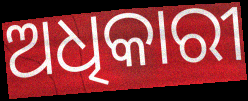
ଅଧିକାରୀ